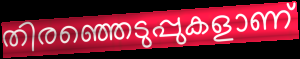
തിരഞ്ഞെടുപ്പുകളാണ്